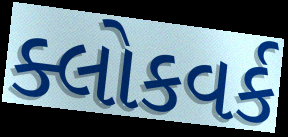
ક્લોકવર્ક